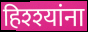
हिश्श्यांना